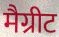
मैग्रीट